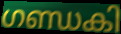
ഗണ്ഡകി